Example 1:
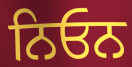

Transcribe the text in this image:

ਨਿਓਨ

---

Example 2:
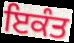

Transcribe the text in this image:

ਇਕੰਤ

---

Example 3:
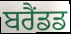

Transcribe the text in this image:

ਬਰੈਂਡਡ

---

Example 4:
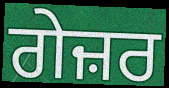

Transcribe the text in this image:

ਗੇਜ਼ਰ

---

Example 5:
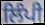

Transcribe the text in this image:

ਲਿੰਪੀ